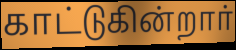
காட்டுகின்றார்